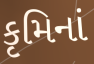
કૃમિનાં